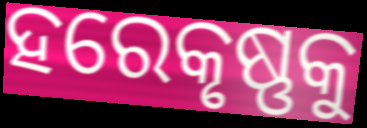
ହରେକୃଷ୍ଣକୁ